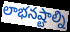
లాభనష్టాల్ని